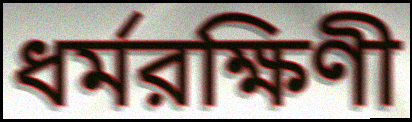
ধর্মরক্ষিণী